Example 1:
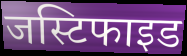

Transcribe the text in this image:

जस्टिफाइड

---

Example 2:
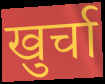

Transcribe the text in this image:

खुर्चा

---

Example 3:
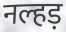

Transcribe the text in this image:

नल्हड़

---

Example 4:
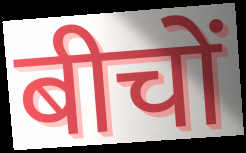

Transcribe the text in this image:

बीचों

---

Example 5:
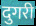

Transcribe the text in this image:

दुगरी